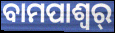
ବାମପାଶ୍ୱର୍